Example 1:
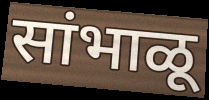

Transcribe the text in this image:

सांभाळू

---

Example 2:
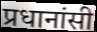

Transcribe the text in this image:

प्रधानांसी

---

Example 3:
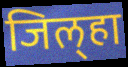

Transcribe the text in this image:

जिल्हा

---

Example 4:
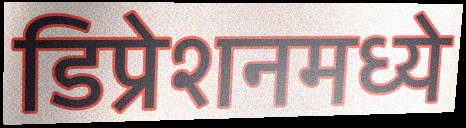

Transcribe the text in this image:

डिप्रेशनमध्ये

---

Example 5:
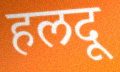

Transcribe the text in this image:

हलदू